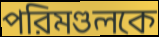
পরিমণ্ডলকে